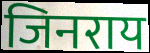
जिनराय